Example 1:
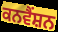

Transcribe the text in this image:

ਕਨਵੈੰਸ਼ਨ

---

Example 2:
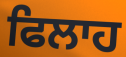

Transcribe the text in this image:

ਫਿਲਾਹ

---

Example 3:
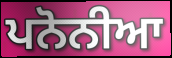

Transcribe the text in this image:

ਪਨੋਨੀਆ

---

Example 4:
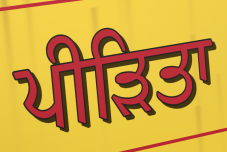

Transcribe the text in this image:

ਪੀੜਿਤਾ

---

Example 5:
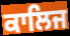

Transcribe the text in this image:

ਕਾਲਿਜ